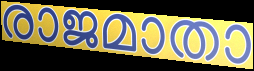
രാജമാതാ